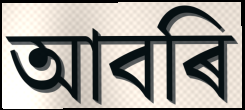
আবৰি